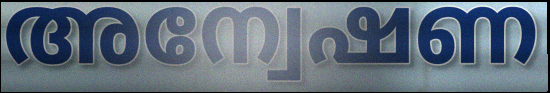
അന്വേഷണ